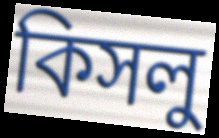
কিসলু